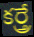
కర్త్రే